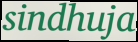
sindhuja